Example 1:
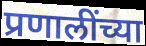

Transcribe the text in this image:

प्रणालींच्या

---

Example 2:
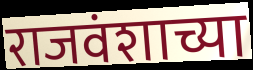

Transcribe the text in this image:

राजवंशाच्या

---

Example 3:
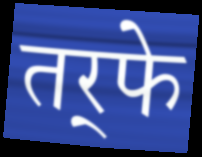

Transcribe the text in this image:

तर्फे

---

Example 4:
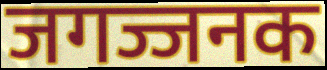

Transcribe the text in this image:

जगज्जनक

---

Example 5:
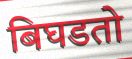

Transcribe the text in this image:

बिघडतो